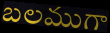
బలముగా